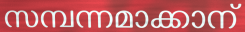
സമ്പന്നമാക്കാന്